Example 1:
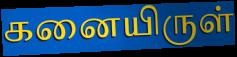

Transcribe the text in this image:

கனையிருள்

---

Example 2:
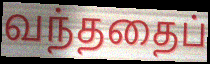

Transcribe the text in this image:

வந்ததைப்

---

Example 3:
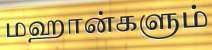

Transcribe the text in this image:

மஹான்களும்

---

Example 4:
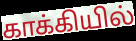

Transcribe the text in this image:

காக்கியில்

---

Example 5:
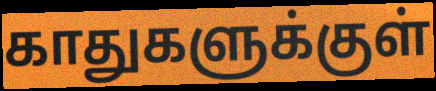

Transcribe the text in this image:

காதுகளுக்குள்